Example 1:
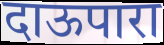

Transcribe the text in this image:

दाऊपारा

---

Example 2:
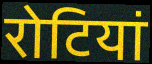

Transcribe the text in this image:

रोटियां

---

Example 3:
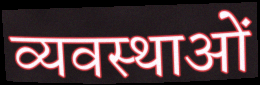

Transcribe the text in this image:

व्यवस्थाओें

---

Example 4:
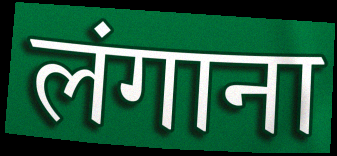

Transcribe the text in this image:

लंगाना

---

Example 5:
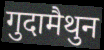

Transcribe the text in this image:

गुदामैथुन